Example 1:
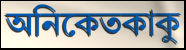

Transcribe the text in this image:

অনিকেতকাকু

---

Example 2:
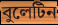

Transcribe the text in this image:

বুলেটিন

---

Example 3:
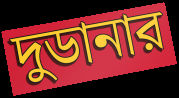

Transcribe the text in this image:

দুডানার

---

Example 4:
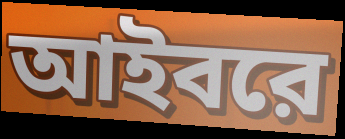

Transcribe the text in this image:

আইবরে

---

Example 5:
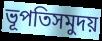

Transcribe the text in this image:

ভূপতিসমুদয়